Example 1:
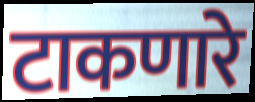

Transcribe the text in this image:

टाकणारे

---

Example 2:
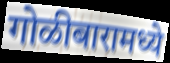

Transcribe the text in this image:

गोळीबारामध्ये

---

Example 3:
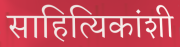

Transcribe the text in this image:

साहित्यिकांशी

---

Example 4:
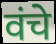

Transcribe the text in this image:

वंचे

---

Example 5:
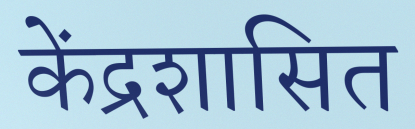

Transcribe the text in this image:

केंद्रशासित